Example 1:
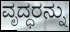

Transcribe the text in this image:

ವೃದ್ಧರನ್ನು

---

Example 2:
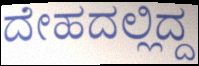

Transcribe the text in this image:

ದೇಹದಲ್ಲಿದ್ದ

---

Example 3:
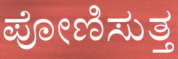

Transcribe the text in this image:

ಪೋಣಿಸುತ್ತ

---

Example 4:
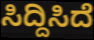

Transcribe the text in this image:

ಸಿದ್ದಿಸಿದೆ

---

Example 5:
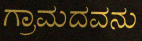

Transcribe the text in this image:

ಗ್ರಾಮದವನು